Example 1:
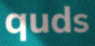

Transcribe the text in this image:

quds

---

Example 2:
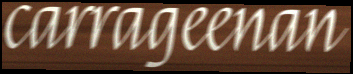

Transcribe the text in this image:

carrageenan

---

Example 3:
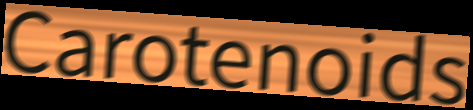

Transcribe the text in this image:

Carotenoids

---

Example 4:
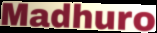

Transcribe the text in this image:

Madhuro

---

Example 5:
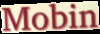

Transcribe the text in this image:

Mobin